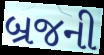
બ્રજની